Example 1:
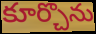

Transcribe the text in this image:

కూర్చొను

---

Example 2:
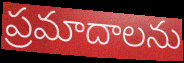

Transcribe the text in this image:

ప్రమాదాలను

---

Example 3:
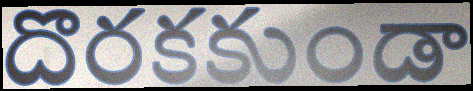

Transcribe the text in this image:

దొరకకుండా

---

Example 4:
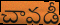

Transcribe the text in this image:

చావడీ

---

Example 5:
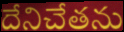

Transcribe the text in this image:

దేనిచేతను